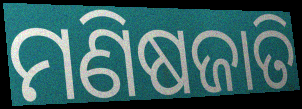
ମଣିଷଜାତି